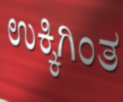
ಉಕ್ಕಿಗಿಂತ